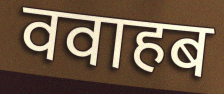
ववाहब